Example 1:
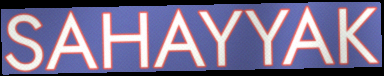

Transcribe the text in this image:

SAHAYYAK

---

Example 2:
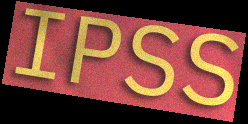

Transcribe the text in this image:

IPSS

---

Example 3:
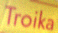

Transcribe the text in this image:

Troika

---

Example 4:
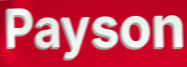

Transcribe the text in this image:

Payson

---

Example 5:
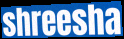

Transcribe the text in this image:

shreesha